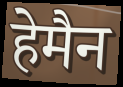
हेमैन